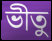
ভীতু